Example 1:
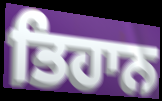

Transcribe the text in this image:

ਤਿਹਾਨ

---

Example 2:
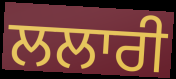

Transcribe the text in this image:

ਲਲਾਰੀ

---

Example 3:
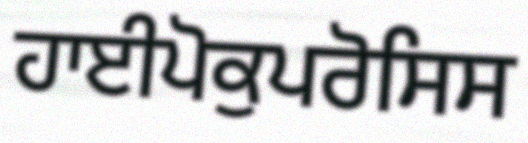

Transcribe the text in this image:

ਹਾਈਪੋਕੁਪਰੋਸਿਸ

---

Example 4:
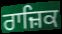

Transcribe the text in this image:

ਰਾਜ਼ਿਕ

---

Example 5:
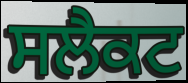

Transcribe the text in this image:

ਸਲੈਕਟ